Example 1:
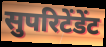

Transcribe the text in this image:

सुपरिटेंडेंट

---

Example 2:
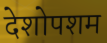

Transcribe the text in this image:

देशोपशम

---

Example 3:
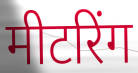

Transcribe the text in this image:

मीटरिंग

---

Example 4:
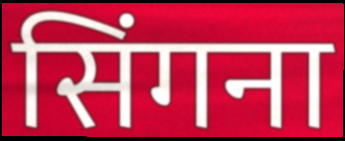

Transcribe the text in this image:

सिंगना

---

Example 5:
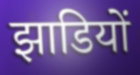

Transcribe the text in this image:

झाडियों